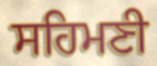
ਸਹਿਮਣੀ